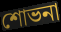
শোভনা